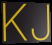
KJ